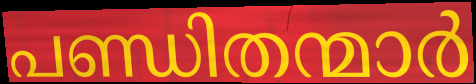
പണ്ഡിതന്മാർ